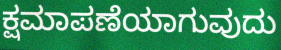
ಕ್ಷಮಾಪಣೆಯಾಗುವುದು